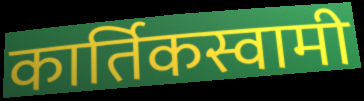
कार्तिकस्वामी